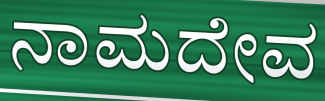
ನಾಮದೇವ